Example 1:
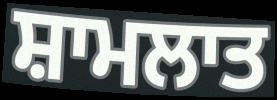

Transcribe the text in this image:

ਸ਼ਾਮਲਾਤ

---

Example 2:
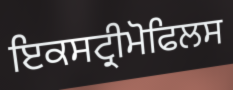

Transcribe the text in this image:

ਇਕਸਟ੍ਰੀਮੋਫਿਲਸ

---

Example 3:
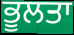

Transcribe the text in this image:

ਭੂਲਤਾ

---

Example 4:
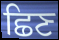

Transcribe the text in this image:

ਛਿਣ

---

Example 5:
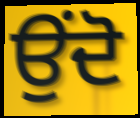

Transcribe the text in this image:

ਉਂਦੋ